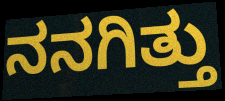
ನನಗಿತ್ತು